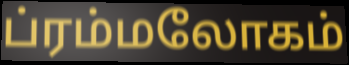
ப்ரம்மலோகம்